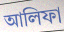
আলিফা